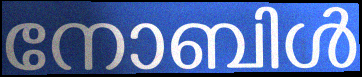
നോബിൾ